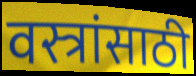
वस्त्रांसाठी